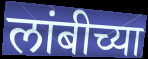
लांबीच्या